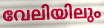
വേലിയിലും